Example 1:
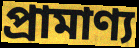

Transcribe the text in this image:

প্ৰামাণ্য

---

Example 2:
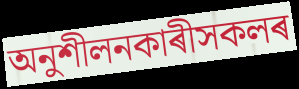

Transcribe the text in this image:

অনুশীলনকাৰীসকলৰ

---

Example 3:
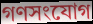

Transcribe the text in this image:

গণসংযোগ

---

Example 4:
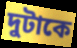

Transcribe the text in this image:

দুটাকে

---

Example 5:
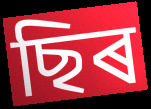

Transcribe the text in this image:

ছিৰ